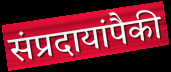
संप्रदायांपैकी